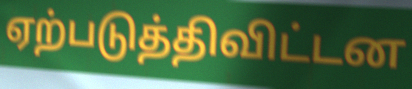
ஏற்படுத்திவிட்டன